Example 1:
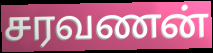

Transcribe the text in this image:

சரவணன்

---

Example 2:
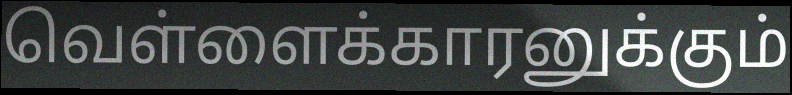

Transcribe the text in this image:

வெள்ளைக்காரனுக்கும்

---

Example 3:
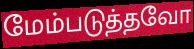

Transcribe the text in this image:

மேம்படுத்தவோ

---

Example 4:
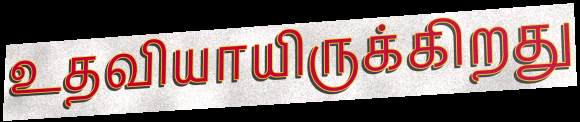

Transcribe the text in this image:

உதவியாயிருக்கிறது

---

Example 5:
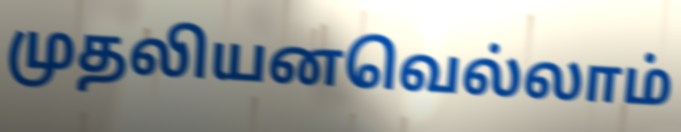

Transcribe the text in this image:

முதலியனவெல்லாம்